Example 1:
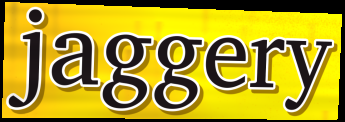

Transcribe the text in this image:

jaggery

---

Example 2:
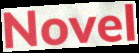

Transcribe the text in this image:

Novel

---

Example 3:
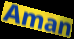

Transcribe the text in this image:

Aman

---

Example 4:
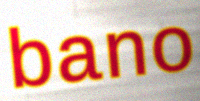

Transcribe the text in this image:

bano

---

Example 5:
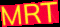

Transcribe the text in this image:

MRT